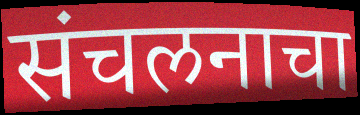
संचलनाचा